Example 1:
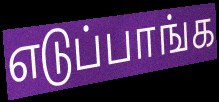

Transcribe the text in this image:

எடுப்பாங்க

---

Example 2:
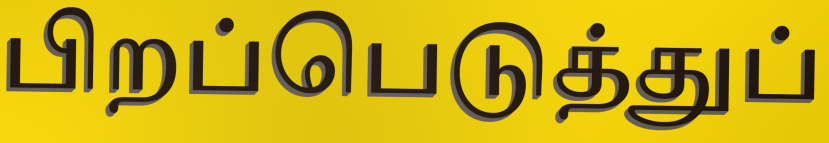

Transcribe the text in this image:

பிறப்பெடுத்துப்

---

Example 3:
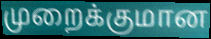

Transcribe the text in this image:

முறைக்குமான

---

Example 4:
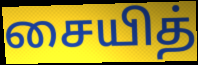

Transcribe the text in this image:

சையித்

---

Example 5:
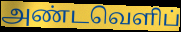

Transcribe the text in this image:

அண்டவெளிப்